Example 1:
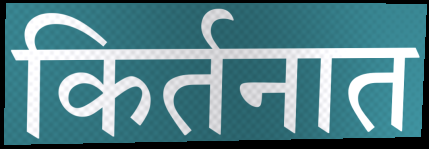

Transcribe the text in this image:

किर्तनात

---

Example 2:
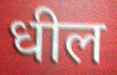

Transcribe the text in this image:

धील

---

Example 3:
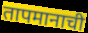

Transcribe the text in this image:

तापमानाची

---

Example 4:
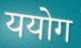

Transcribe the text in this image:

ययोग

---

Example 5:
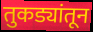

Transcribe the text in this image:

तुकड्यांतून